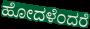
ಹೋದಳೆಂದರೆ